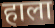
हाला